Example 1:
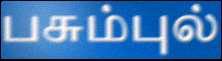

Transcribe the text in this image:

பசும்புல்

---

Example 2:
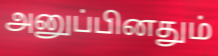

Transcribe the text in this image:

அனுப்பினதும்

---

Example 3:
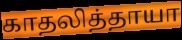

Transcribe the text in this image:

காதலித்தாயா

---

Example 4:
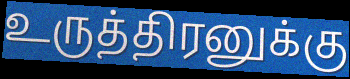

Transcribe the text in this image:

உருத்திரனுக்கு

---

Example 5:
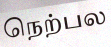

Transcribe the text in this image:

நெற்பல